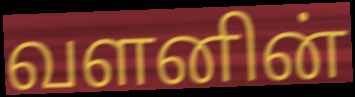
வளனின்